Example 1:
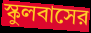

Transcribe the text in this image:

স্কুলবাসের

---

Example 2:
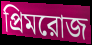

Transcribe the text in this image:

প্রিমরোজ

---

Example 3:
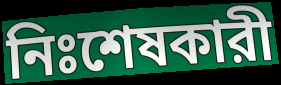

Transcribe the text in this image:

নিঃশেষকারী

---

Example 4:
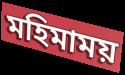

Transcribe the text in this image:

মহিমাময়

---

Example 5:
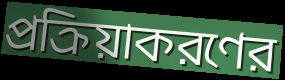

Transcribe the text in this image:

প্রক্রিয়াকরণের